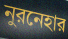
নুরনেহার